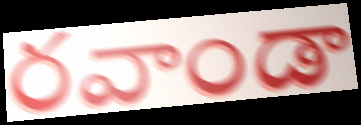
రవాండా